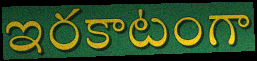
ఇరకాటంగా